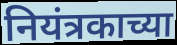
नियंत्रकाच्या